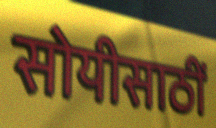
सोयीसाठीं